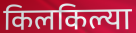
किलकिल्या